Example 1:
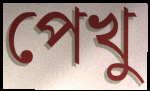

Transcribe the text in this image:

পেখু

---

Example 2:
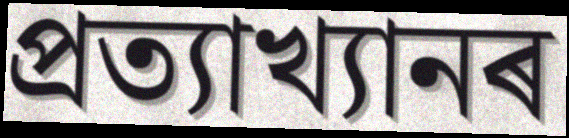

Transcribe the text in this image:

প্ৰত্যাখ্যানৰ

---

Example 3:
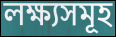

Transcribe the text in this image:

লক্ষ্যসমূহ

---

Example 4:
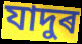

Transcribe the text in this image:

যাদুৰ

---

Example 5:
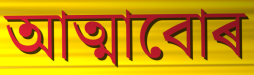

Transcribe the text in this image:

আত্মাবোৰ